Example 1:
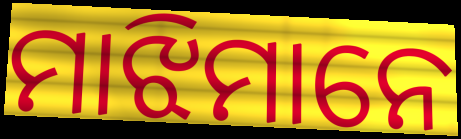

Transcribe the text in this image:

ମାଝିମାନେ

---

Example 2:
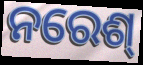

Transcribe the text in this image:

ନରେଶ୍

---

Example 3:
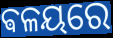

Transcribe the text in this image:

ଵଳୟରେ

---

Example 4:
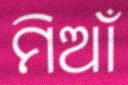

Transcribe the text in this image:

ମିଆଁ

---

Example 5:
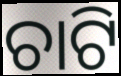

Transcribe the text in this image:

ଚାଟି